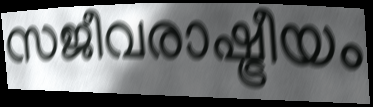
സജീവരാഷ്ട്രീയം